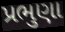
પ્રભુણા